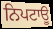
ਨਿਪਟਾਊ